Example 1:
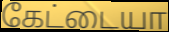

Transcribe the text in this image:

கேட்டையா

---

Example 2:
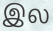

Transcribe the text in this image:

இல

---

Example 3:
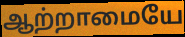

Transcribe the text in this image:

ஆற்றாமையே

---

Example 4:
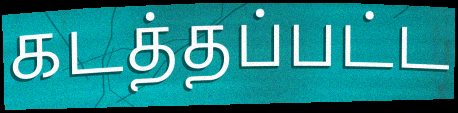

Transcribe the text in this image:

கடத்தப்பட்ட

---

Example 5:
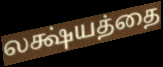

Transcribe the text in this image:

லக்ஷ்யத்தை